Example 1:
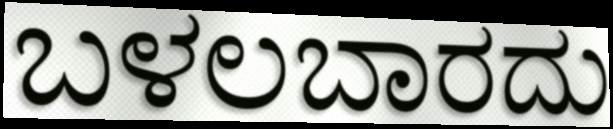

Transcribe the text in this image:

ಬಳಲಬಾರದು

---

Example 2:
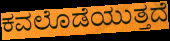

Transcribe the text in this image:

ಕವಲೊಡೆಯುತ್ತದೆ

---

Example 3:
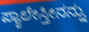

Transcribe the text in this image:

ಪ್ಯಾಲೇಸ್ತೀನನ್ನು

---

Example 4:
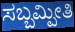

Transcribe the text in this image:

ಸಬ್ಬಮ್ಪೀತಿ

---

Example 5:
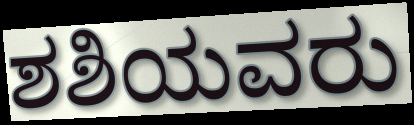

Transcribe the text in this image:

ಶಶಿಯವರು